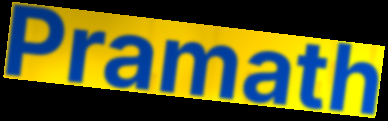
Pramath